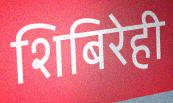
शिबिरेही